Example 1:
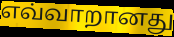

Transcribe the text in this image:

எவ்வாறானது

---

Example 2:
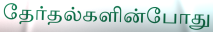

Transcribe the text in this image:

தேர்தல்களின்போது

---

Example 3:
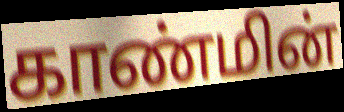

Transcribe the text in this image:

காண்மின்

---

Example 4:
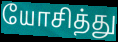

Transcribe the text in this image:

யோசித்து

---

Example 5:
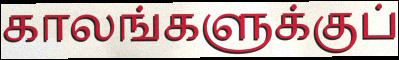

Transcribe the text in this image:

காலங்களுக்குப்